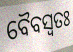
ବୈବସ୍ଵତଃ